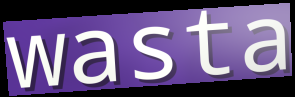
wasta